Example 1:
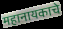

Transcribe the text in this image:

महानायकाचे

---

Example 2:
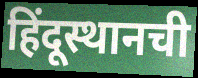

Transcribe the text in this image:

हिंदूस्थानची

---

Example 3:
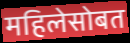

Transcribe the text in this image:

महिलेसोबत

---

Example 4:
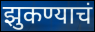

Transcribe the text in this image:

झुकण्याचं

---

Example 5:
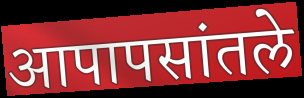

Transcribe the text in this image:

आपापसांतले